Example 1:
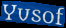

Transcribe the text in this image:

Yusof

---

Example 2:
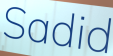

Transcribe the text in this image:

Sadid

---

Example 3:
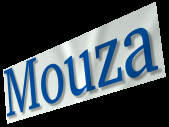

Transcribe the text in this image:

Mouza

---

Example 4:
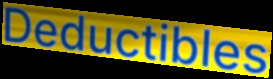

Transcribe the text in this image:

Deductibles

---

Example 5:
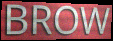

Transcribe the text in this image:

BROW